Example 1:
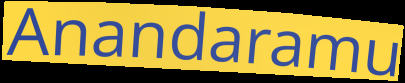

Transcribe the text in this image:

Anandaramu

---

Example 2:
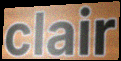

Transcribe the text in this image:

clair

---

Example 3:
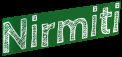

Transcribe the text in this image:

Nirmiti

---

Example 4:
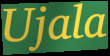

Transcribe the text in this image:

Ujala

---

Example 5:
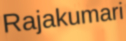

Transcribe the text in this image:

Rajakumari